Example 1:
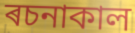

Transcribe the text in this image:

ৰচনাকাল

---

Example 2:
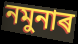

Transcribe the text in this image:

নমুনাৰ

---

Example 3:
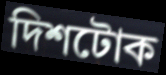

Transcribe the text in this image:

দিশটোক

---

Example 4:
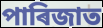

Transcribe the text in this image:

পাৰিজাত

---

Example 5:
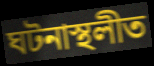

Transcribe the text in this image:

ঘটনাস্থলীত